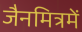
जैनमित्रमें